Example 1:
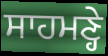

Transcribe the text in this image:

ਸਾਹਮਣ੍ਹੇ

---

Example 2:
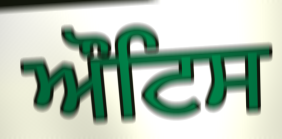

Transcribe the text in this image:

ਔਟਿਸ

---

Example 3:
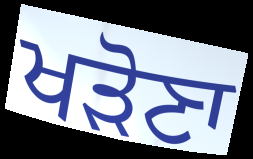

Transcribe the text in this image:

ਖੜੋਣਾ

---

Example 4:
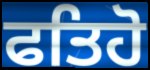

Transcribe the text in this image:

ਫਤਿਹੋ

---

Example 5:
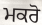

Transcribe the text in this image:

ਮਕਰੋ